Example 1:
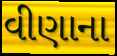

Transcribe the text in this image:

વીણાના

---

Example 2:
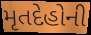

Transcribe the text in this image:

મૃતદેહોની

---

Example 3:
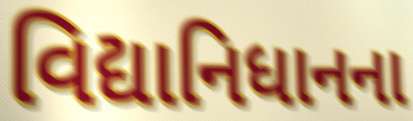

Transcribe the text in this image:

વિદ્યાનિધાનના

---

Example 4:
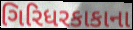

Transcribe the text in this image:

ગિરિધરકાકાના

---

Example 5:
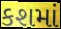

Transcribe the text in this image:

કશમાં